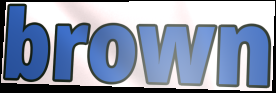
brown